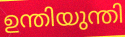
ഉന്തിയുന്തി